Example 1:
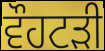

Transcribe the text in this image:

ਵੌਹਟੜੀ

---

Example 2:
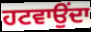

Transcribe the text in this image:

ਹਟਵਾਉਂਦਾ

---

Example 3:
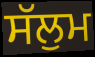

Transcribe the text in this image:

ਸੱਲੁਮ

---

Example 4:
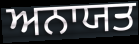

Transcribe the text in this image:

ਅਨਾਯਤ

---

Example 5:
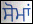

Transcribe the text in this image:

ਸੋਮਾਂ